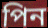
পিন